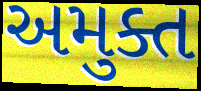
અમુક્ત